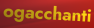
ogacchanti